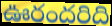
ఊరందరిది